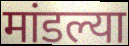
मांडल्या